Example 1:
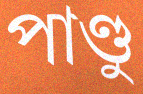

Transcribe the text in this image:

পাণ্ডু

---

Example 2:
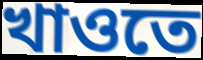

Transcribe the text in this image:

খাওতে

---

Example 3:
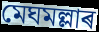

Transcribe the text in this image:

মেঘমল্লাৰ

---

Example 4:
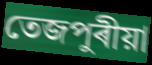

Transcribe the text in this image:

তেজপুৰীয়া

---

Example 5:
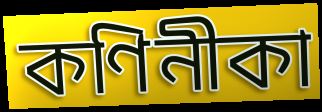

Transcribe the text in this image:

কণিনীকা